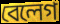
বেলেগ